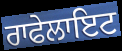
ਰਾਫੇਲਾਇਟ